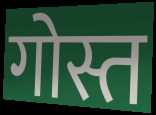
गोस्त